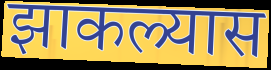
झाकल्यास